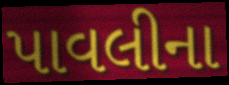
પાવલીના